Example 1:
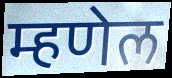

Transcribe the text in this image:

म्हणेल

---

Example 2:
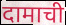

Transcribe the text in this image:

दामाची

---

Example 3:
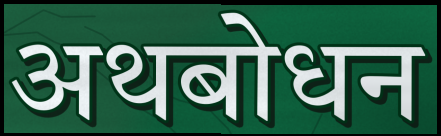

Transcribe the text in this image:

अथबोधन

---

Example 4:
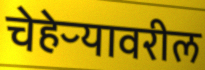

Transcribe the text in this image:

चेहेऱ्यावरील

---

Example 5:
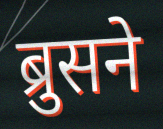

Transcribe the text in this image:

ब्रुसने